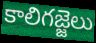
కాలిగజ్జెలు